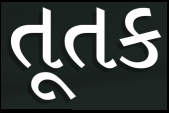
તૂતક